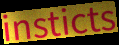
insticts